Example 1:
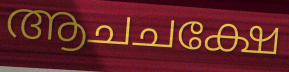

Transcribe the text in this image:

ആചചക്ഷേ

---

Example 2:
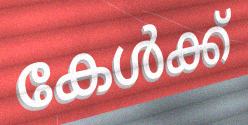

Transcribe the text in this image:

കേൾക്ക്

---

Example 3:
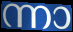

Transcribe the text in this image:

ന്നാ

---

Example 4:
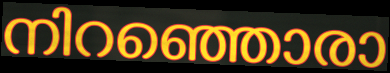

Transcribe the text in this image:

നിറഞ്ഞൊരാ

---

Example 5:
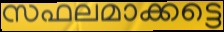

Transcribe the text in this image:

സഫലമാക്കട്ടെ